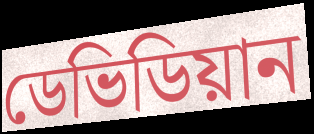
ডেভিডিয়ান